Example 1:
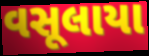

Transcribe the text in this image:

વસૂલાયા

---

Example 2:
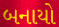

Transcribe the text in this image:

બનાયો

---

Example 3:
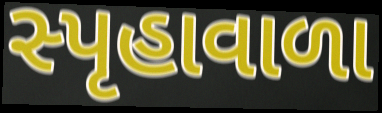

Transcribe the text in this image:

સ્પૃહાવાળા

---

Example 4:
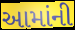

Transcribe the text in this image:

આમાંની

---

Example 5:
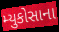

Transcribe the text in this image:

મ્યુકોસાના